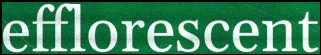
efflorescent